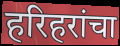
हरिहरांचा